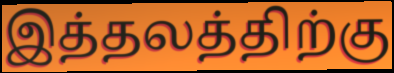
இத்தலத்திற்கு